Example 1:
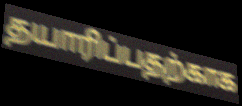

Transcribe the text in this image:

தயாரிப்பதற்காக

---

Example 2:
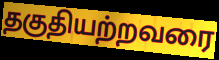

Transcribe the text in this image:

தகுதியற்றவரை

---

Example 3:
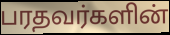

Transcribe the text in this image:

பரதவர்களின்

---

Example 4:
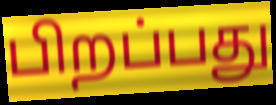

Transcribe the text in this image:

பிறப்பது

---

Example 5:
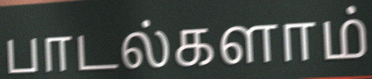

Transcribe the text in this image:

பாடல்களாம்